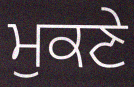
ਮੁਕਣੇ